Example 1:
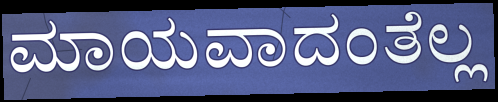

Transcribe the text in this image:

ಮಾಯವಾದಂತೆಲ್ಲ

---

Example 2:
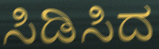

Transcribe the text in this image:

ಸಿಡಿಸಿದ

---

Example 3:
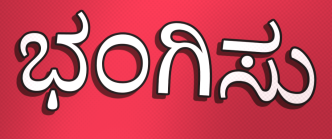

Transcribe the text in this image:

ಭಂಗಿಸು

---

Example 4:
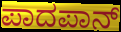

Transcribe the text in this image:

ಪಾದಪಾನ್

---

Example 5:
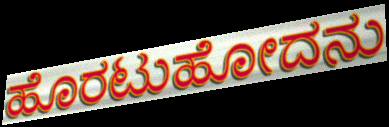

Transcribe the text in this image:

ಹೊರಟುಹೋದನು